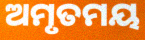
ଅମୃତମୟ